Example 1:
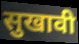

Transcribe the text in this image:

सुखावी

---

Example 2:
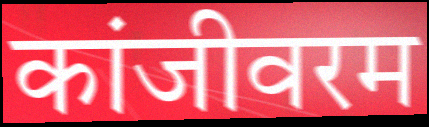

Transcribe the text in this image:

कांजीवरम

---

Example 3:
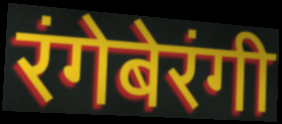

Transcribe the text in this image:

रंगेबेरंगी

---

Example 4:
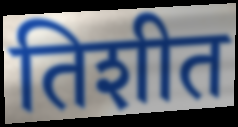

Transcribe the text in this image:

तिशीत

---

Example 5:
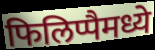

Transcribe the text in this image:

फिलिप्पैमध्ये